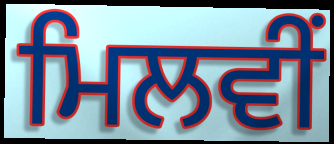
ਮਿਲਵੀਂ